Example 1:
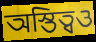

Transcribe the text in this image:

অস্তিত্বও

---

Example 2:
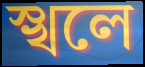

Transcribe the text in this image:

স্খলে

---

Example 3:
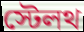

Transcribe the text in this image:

স্টেলথ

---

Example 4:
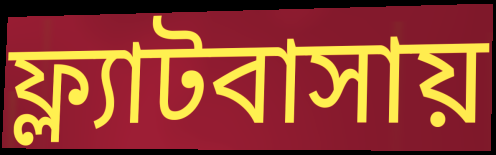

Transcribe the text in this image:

ফ্ল্যাটবাসায়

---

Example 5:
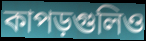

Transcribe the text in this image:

কাপড়গুলিও